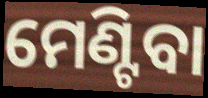
ମେଣ୍ଟିବା